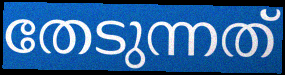
തേടുന്നത്